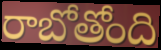
రాబోతోంది